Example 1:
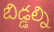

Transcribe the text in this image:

బిడ్డల్ని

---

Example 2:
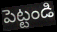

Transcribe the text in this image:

పెట్టండి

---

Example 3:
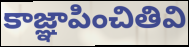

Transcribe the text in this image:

కాజ్ఞాపించితివి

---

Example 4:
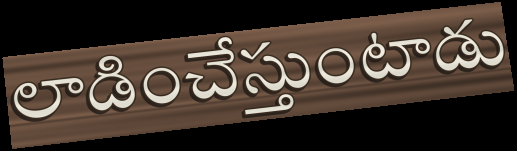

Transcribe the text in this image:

లాడించేస్తుంటాడు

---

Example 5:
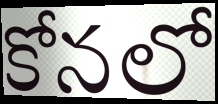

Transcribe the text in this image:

కోనలో